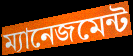
ম্যানেজমেন্ট